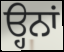
ੳ੍ਹਨਾਂ